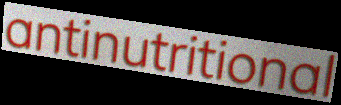
antinutritional